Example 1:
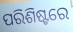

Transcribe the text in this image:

ପରିଶିଷ୍ଟରେ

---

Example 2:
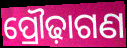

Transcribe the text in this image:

ପ୍ରୌଢ଼ାଗଣ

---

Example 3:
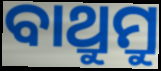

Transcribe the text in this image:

ବାଥ୍ରୁମ୍ରୁ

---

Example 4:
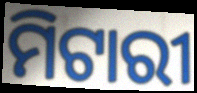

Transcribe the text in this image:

ମିଟାରୀ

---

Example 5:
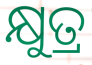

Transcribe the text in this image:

କ୍ଷୁତ୍ର